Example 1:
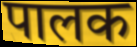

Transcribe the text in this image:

पालक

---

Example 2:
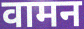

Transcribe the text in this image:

वामन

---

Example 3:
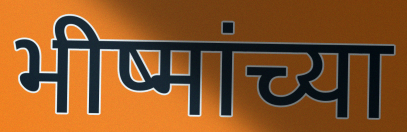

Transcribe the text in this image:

भीष्मांच्या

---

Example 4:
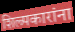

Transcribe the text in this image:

शिल्पकारांना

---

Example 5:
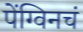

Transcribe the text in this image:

पेंग्विनचं